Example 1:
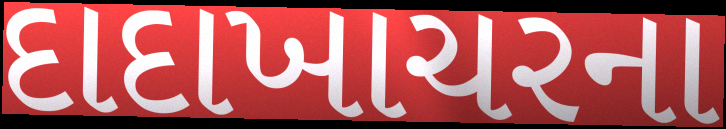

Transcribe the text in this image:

દાદાખાચરના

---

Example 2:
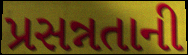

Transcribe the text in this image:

પ્રસન્નતાની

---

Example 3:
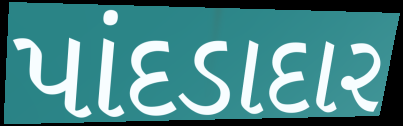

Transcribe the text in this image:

પાંદડાદાર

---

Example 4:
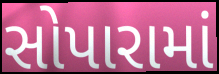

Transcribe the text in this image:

સોપારામાં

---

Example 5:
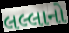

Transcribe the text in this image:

લલ્લાનો